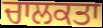
ਚਾਲਕਤਾ